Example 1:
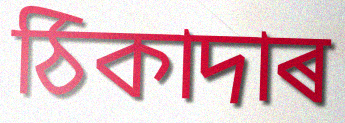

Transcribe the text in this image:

ঠিকাদাৰ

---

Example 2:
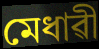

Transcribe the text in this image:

মেধাৱী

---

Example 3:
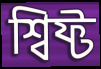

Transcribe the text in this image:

শ্বিফ্ট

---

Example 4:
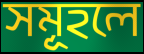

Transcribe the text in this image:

সমূহলে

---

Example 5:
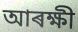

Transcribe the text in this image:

আৰক্ষী